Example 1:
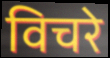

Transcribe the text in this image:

विचरे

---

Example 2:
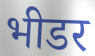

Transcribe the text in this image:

भीडर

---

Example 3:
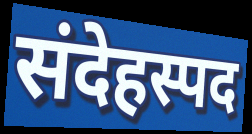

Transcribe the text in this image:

संदेहस्पद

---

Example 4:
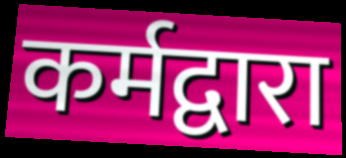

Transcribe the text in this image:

कर्मद्वारा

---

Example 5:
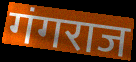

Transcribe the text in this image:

गंगराज